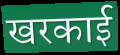
खरकाई